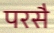
परसै